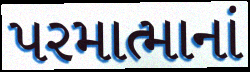
પરમાત્માનાં